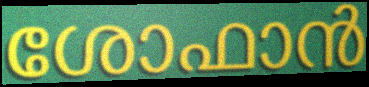
ശോഫാൻ